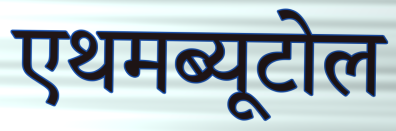
एथमब्यूटोल